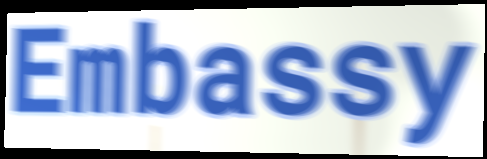
Embassy